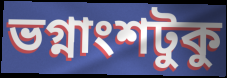
ভগ্নাংশটুকু